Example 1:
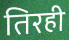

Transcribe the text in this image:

तिरही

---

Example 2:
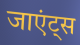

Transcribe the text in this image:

जाएंट्स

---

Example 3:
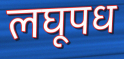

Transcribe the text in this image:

लघूपध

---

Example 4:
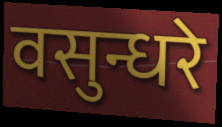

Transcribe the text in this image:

वसुन्धरे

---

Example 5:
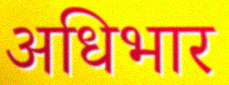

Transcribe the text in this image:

अधिभार